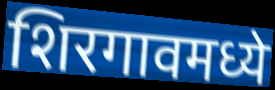
शिरगावमध्ये